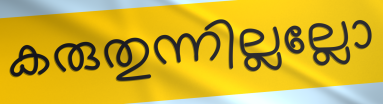
കരുതുന്നില്ലല്ലോ